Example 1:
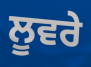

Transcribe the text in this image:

ਲੂਵਰੇ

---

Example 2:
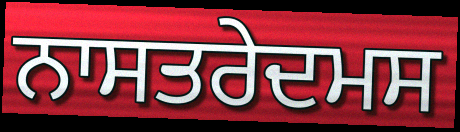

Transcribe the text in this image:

ਨਾਸਤਰੇਦਮਸ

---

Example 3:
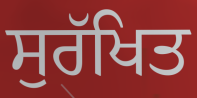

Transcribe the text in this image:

ਸੁਰੱਖਿਤ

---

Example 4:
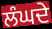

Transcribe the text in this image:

ਲੰਘਦੇ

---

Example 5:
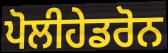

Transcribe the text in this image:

ਪੋਲੀਹੇਡਰੋਨ